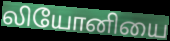
லியோனியை